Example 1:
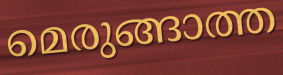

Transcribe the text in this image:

മെരുങ്ങാത്ത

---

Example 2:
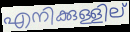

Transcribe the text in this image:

എനിക്കുള്ളില്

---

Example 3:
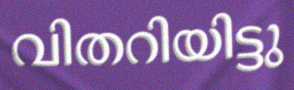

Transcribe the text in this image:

വിതറിയിട്ടു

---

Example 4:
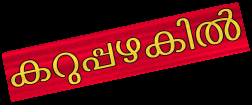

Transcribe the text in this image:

കറുപ്പഴകിൽ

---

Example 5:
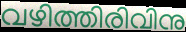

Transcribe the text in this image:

വഴിത്തിരിവിനു